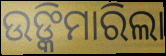
ଉଙ୍କିମାରିଲା